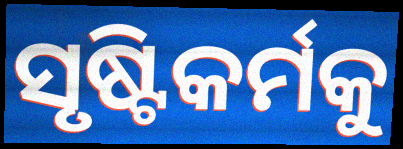
ସୃଷ୍ଟିକର୍ମକୁ